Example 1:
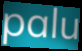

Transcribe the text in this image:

palu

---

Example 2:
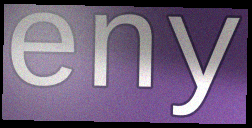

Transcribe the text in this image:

eny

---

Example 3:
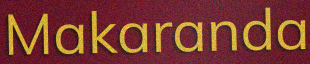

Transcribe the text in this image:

Makaranda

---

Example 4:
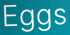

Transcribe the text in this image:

Eggs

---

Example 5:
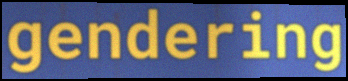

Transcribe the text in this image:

gendering